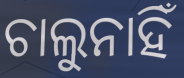
ଚାଲୁନାହିଁ